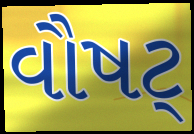
વૌષટ્